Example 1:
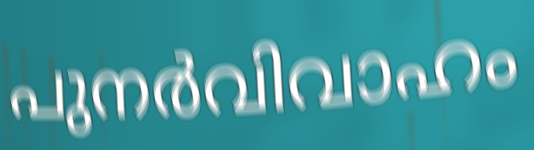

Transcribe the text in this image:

പുനർവിവാഹം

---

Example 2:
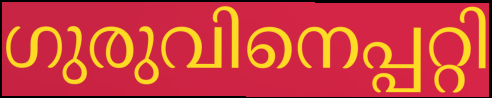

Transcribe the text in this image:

ഗുരുവിനെപ്പറ്റി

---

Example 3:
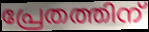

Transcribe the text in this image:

പ്രേതത്തിന്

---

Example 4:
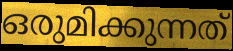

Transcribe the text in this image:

ഒരുമിക്കുന്നത്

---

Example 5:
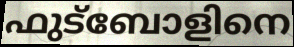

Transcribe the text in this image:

ഫുട്ബോളിനെ